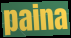
paina